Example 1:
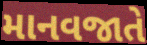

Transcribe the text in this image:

માનવજાતે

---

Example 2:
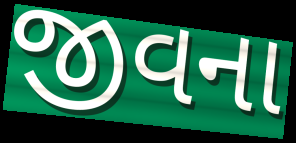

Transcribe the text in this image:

જીવના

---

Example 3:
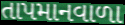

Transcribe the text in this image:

તાપમાનવાળા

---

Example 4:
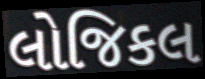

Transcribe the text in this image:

લોજિકલ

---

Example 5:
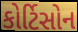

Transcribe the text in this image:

કોર્ટિસોન